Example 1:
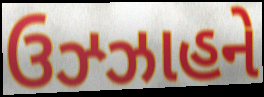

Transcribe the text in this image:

ઉઝ્ઝાહને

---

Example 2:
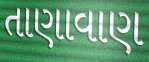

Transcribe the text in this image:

તાણાવાણ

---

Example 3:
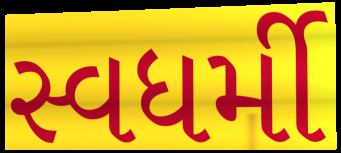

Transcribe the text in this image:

સ્વધર્મી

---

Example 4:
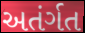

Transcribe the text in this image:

અતંર્ગત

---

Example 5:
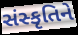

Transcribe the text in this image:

સંસ્કૃતિને